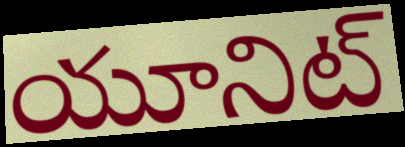
యూనిట్